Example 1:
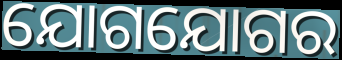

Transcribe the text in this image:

ଯୋଗଯୋଗର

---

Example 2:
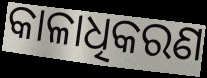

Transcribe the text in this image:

କାଳାଧିକରଣ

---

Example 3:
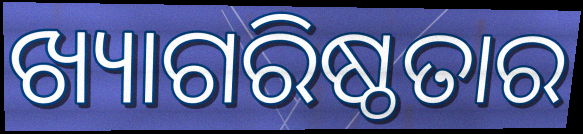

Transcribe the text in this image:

ଖ୍ୟାଗରିଷ୍ଠତାର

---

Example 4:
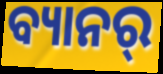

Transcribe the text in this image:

ବ୍ୟାନର୍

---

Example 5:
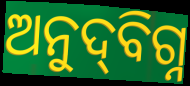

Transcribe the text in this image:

ଅନୁଦ୍‌ବିଗ୍ନ